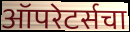
ऑपरेटर्सचा